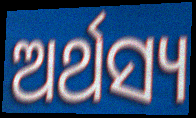
ଅର୍ଥସ୍ୟ